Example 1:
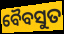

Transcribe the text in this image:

ବୈବସୁତ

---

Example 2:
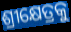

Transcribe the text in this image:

ଶ୍ରୀକ୍ଷେତ୍ରକୁ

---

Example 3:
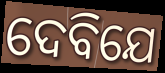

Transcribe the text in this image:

ଦେବିଯେ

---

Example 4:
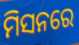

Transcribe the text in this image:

ମିସନରେ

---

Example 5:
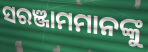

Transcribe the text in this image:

ସରଞ୍ଜାମମାନଙ୍କୁ